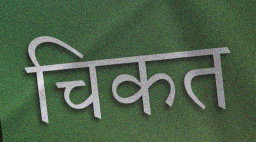
चिकत